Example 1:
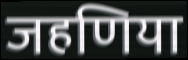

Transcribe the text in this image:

जहणिया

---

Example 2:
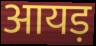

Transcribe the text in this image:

आयड़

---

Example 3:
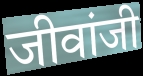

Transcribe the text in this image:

जीवांजी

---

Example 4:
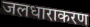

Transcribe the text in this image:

जलधाराकरण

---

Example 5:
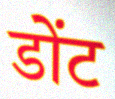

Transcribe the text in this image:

डोंट